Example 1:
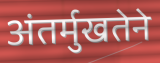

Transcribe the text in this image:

अंतर्मुखतेने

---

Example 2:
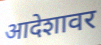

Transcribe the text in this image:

आदेशावर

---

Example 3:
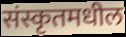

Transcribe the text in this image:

संस्कृतमधील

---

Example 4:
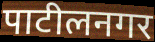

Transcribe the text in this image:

पाटीलनगर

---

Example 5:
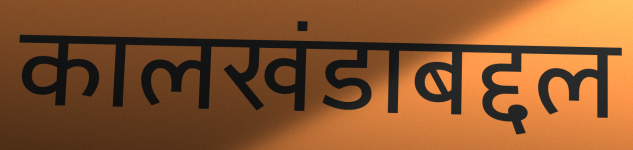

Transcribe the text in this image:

कालखंडाबद्दल